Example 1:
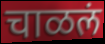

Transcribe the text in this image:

चाळलं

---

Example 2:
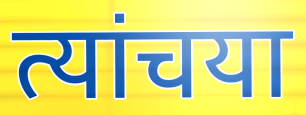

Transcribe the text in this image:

त्यांचया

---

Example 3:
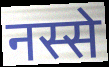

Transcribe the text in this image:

नस्से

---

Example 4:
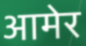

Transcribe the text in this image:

आमेर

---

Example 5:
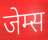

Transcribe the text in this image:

जेम्स